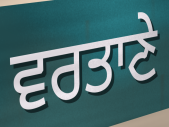
ਵਰਤਾਣੇ